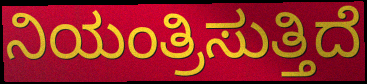
ನಿಯಂತ್ರಿಸುತ್ತಿದೆ